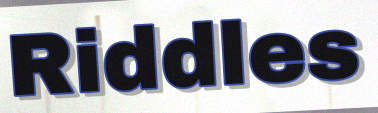
Riddles